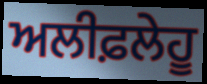
ਅਲੀਫ਼ਲੇਹੂ